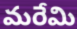
మరేమి